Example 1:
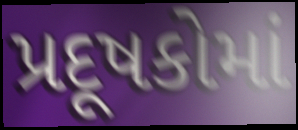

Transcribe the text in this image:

પ્રદૂષકોમાં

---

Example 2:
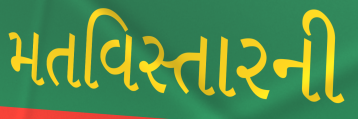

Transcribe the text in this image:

મતવિસ્તારની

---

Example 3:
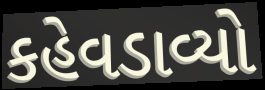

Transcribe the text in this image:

કહેવડાવ્યો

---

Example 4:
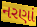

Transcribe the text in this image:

નરણાં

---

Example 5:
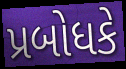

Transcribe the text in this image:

પ્રબોધકે